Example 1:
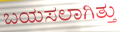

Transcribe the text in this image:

ಬಯಸಲಾಗಿತ್ತು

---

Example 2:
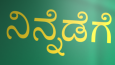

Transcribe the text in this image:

ನಿನ್ನೆಡೆಗೆ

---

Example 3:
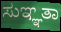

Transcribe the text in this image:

ಸುಞ್ಞತಾ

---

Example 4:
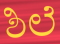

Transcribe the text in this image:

ಶಿಲೆ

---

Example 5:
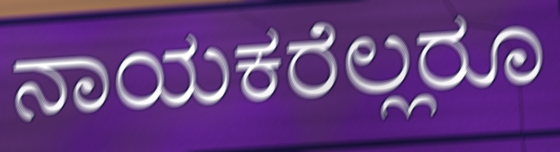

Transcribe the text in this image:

ನಾಯಕರೆಲ್ಲರೂ